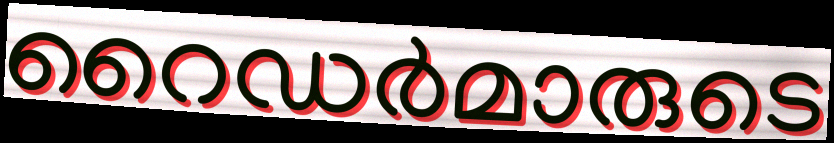
റൈഡർമാരുടെ